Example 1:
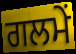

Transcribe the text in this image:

ਗਲਮੇਂ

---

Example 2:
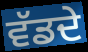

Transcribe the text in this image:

ਵੱਡਦੇ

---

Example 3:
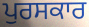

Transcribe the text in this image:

ਪੁਰਸਕਾਰ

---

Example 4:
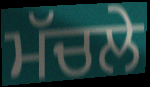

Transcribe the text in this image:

ਮੱਚਲੇ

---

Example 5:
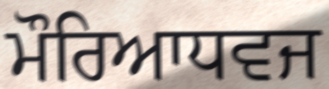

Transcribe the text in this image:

ਮੌਰਿਆਧਵਜ